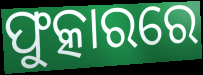
ଫୁତ୍କାରରେ